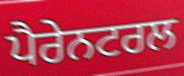
ਪੈਰੇਨਟਰਲ